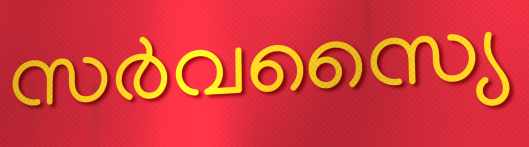
സർവസ്യൈ